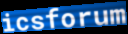
icsforum